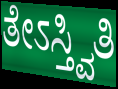
ತೇಽಸ್ತ್ವಿತಿ